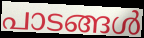
പാടങ്ങൾ